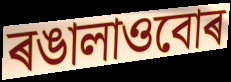
ৰঙালাওবোৰ